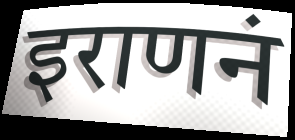
इराणनं